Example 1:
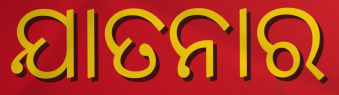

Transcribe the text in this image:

ଯାତନାର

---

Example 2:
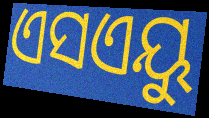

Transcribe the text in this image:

ଏସଏୟୁ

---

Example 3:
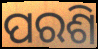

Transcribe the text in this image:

ପରଶି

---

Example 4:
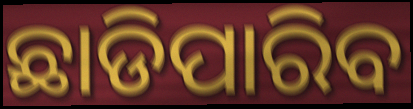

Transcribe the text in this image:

ଛାଡିପାରିବ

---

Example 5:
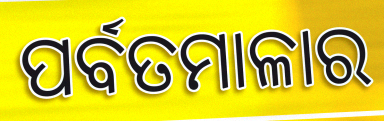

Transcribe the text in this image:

ପର୍ବତମାଳାର